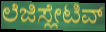
ಲೆಜಿಸ್ಲೇಟಿವ್